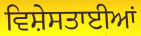
ਵਿਸ਼ੇਸਤਾਈਆਂ